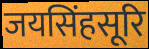
जयसिंहसूरि